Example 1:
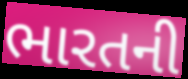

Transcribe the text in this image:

ભારતની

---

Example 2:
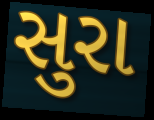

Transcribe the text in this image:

સુરા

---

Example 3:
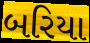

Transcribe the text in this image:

બરિયા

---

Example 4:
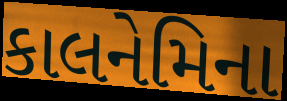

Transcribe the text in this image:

કાલનેમિના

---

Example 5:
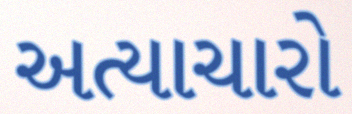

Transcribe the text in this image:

અત્યાચારો